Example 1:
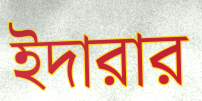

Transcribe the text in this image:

ইদারার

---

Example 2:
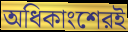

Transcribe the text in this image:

অধিকাংশেরই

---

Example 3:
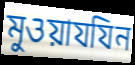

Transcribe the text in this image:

মুওয়াযযিন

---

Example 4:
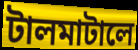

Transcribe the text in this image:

টালমাটালে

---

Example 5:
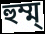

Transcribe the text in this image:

হুম্ম্